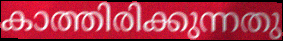
കാത്തിരിക്കുന്നതു